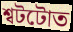
শ্বটটোত